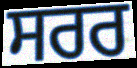
ਸਰਰ